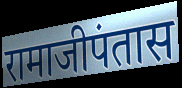
रामाजीपंतास